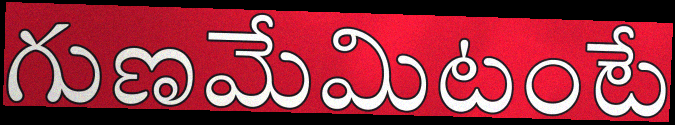
గుణమేమిటంటే